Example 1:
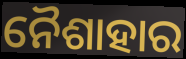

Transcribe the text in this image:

ନୈଶାହାର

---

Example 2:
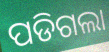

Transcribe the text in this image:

ପଡିଗଲା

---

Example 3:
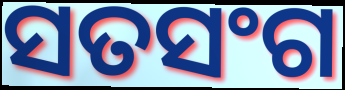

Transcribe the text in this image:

ସତସଂଗ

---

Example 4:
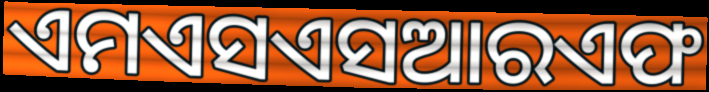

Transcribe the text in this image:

ଏମଏସଏସଆରଏଫ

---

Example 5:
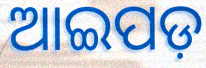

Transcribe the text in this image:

ଆଇପଡ଼